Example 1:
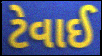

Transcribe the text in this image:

ટેવાઈ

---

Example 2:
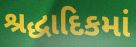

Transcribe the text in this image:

શ્રદ્ધાદિકમાં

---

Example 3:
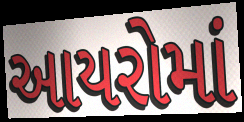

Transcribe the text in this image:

આયરોમાં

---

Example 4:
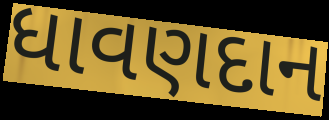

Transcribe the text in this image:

ધાવણદાન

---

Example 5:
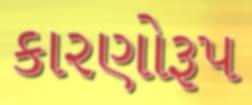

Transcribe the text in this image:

કારણોરૂપ